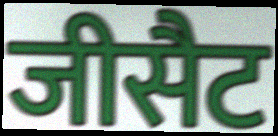
जीसैट